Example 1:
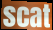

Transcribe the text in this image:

scat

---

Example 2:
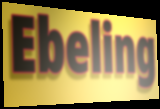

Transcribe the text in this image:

Ebeling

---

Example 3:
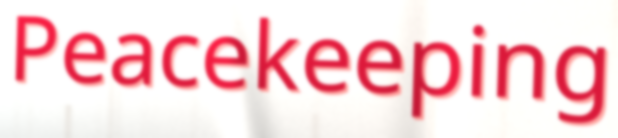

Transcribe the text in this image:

Peacekeeping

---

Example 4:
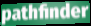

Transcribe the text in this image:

pathfinder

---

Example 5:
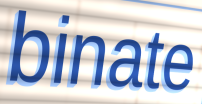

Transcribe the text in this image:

binate